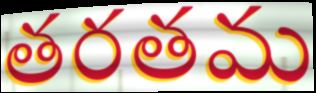
తరతమ